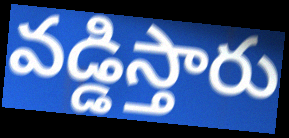
వడ్డిస్తారు